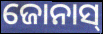
ଜୋନାସ୍